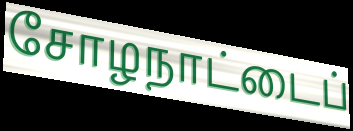
சோழநாட்டைப்